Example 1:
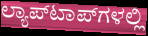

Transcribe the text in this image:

ಲ್ಯಾಪ್‌ಟಾಪ್‌ಗಳಲ್ಲಿ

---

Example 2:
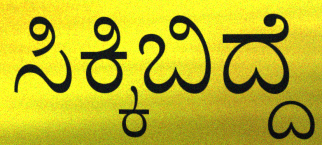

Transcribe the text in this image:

ಸಿಕ್ಕಿಬಿದ್ದೆ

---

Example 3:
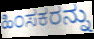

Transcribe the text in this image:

ಹಿಂಸಕರನ್ನು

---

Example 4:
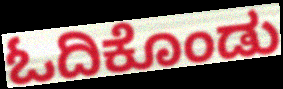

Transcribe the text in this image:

ಓದಿಕೊಂಡು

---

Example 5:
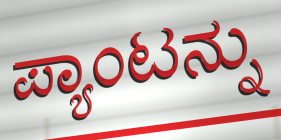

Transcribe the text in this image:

ಪ್ಯಾಂಟನ್ನು